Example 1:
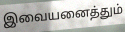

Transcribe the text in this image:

இவையனைத்தும்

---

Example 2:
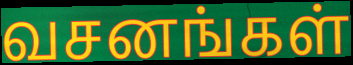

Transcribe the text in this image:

வசனங்கள்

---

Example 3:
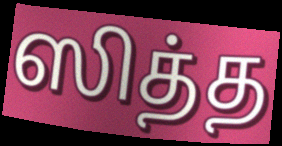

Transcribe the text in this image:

ஸித்த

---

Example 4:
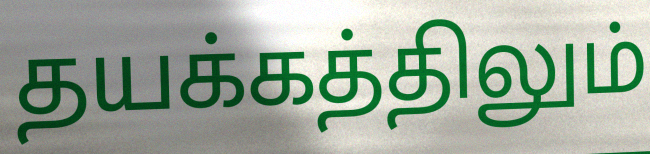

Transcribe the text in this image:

தயக்கத்திலும்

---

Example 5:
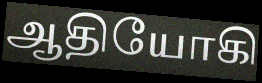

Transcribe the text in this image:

ஆதியோகி